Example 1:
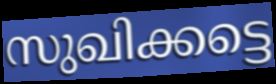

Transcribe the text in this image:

സുഖിക്കട്ടെ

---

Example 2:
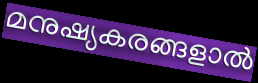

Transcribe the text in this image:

മനുഷ്യകരങ്ങളാൽ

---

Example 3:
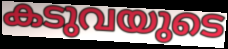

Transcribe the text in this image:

കടുവയുടെ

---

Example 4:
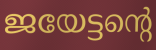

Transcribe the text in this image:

ജയേട്ടന്റെ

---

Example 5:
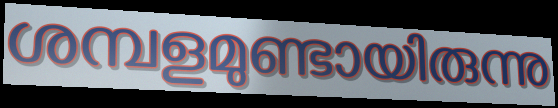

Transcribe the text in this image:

ശമ്പളമുണ്ടായിരുന്നു